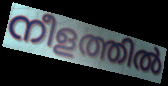
നീളത്തിൽ